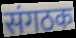
संगठक